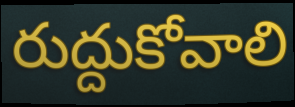
రుద్దుకోవాలి